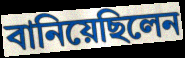
বানিয়েছিলেন